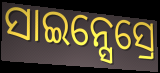
ସାଇନ୍ସେସ୍ରେ